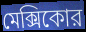
মেক্সিকোর